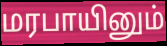
மரபாயினும்